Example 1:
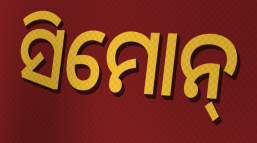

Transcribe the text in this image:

ସିମୋନ୍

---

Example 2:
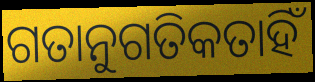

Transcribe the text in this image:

ଗତାନୁଗତିକତାହିଁ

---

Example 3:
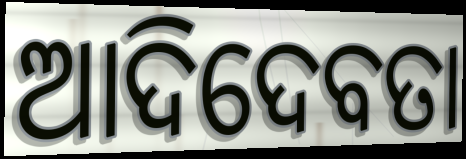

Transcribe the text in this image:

ଆଦିଦେବତା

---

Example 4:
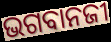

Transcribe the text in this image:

ଭଗବାନଜୀ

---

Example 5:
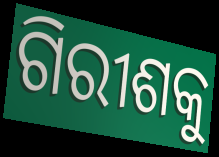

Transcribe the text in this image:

ଗିରୀଶକୁ